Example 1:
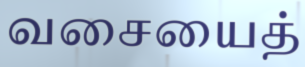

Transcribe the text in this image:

வசையைத்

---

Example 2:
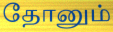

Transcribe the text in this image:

தோனும்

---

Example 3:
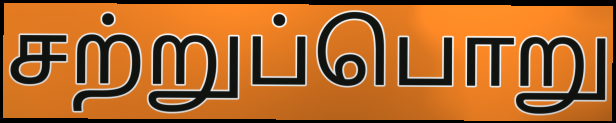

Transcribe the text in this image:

சற்றுப்பொறு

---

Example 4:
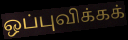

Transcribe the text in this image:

ஒப்புவிக்கக்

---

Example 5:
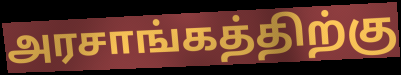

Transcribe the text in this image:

அரசாங்கத்திற்கு